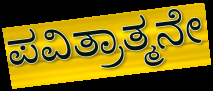
ಪವಿತ್ರಾತ್ಮನೇ